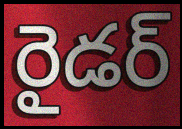
రైడర్